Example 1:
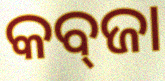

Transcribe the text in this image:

କବ୍‌ଜା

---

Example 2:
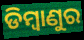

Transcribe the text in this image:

ଡିମ୍ବାଣୁର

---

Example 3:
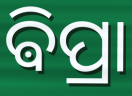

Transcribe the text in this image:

ଵିପ୍ରା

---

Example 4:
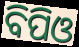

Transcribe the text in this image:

ବିପିଓ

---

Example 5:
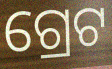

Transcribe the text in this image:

ଗ୍ରେଟ